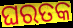
ଘରତକ